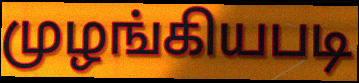
முழங்கியபடி